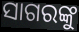
ସାଗରଙ୍କୁ